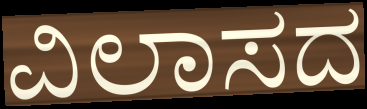
ವಿಲಾಸದ